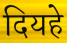
दियहे